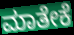
ಮಾತೇಕೆ